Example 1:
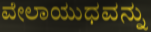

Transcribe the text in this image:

ವೇಲಾಯುಧವನ್ನು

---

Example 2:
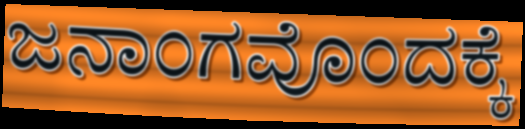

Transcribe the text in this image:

ಜನಾಂಗವೊಂದಕ್ಕೆ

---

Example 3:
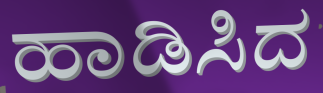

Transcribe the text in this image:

ಹಾಡಿಸಿದ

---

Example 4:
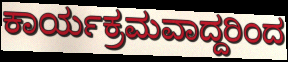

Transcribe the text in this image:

ಕಾರ್ಯಕ್ರಮವಾದ್ದರಿಂದ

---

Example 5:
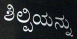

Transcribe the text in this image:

ಶಿಲ್ಪಿಯನ್ನು